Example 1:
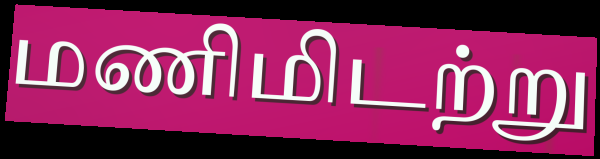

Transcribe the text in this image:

மணிமிடற்று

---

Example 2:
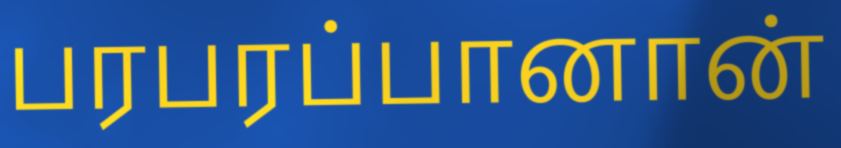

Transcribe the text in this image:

பரபரப்பானான்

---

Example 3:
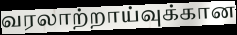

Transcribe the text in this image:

வரலாற்றாய்வுக்கான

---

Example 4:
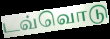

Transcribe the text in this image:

டவ்வொடு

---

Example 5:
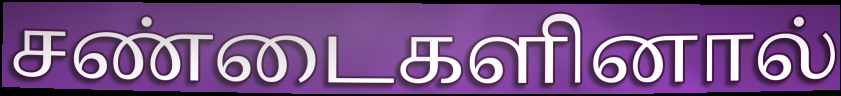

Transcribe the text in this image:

சண்டைகளினால்